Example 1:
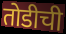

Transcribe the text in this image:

तोडीची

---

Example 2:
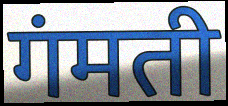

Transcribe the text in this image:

गंमती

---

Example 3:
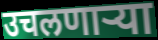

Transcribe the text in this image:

उचलणाऱ्या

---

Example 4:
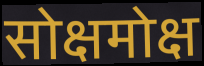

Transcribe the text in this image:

सोक्षमोक्ष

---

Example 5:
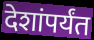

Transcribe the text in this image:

देशांपर्यंत